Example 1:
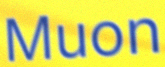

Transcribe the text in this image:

Muon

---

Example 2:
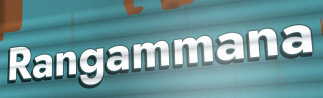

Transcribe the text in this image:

Rangammana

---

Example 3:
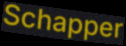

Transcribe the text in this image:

Schapper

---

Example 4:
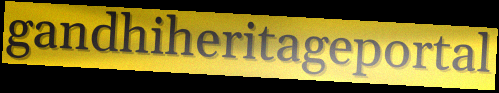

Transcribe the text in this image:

gandhiheritageportal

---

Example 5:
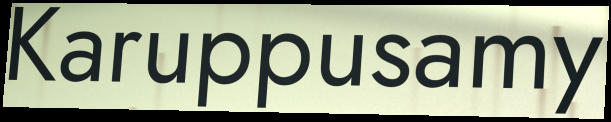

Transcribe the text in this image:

Karuppusamy